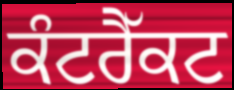
ਕੰਟਰੈੱਕਟ